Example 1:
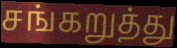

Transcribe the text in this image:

சங்கறுத்து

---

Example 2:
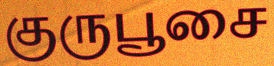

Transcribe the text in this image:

குருபூசை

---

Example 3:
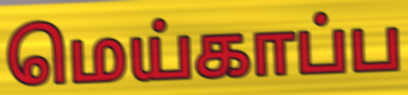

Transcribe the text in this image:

மெய்காப்ப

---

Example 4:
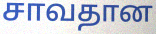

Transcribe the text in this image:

சாவதான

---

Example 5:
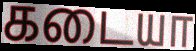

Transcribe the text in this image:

கடையா